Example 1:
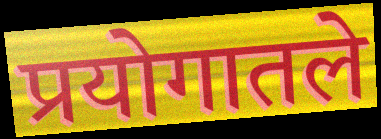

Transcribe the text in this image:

प्रयोगातले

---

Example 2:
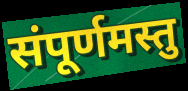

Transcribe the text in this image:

संपूर्णमस्तु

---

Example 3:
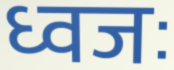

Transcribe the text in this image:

ध्वजः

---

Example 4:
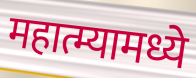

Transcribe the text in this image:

महात्म्यामध्ये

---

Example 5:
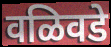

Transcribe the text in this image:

वळिवडे